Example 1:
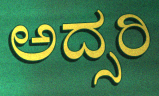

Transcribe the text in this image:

ಅದ್ಸರಿ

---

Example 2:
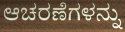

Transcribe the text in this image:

ಆಚರಣೆಗಳನ್ನು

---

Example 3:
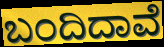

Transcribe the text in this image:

ಬಂದಿದಾವೆ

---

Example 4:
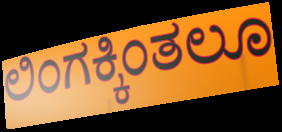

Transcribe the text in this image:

ಲಿಂಗಕ್ಕಿಂತಲೂ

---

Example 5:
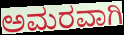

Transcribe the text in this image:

ಅಮರವಾಗಿ